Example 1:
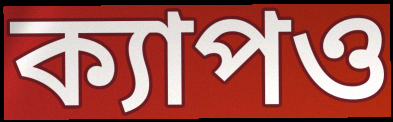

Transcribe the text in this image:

ক্যাপও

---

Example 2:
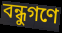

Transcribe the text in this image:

বন্ধুগণে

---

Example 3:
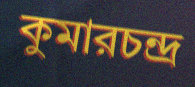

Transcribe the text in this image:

কুমারচন্দ্র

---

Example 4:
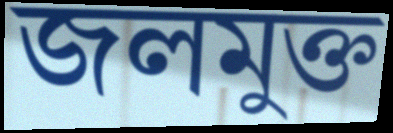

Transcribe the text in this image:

জলমুক্ত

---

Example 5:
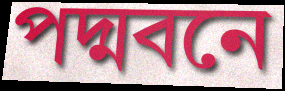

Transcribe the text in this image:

পদ্মবনে